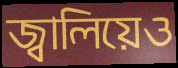
জ্বালিয়েও